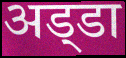
अड्‍डा